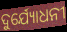
ଦୁର୍ଯ୍ୟୋଧନୀ